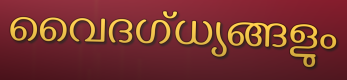
വൈദഗ്ധ്യങ്ങളും